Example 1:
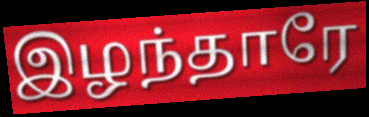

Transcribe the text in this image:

இழந்தாரே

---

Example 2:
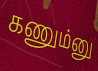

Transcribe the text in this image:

கணும்னு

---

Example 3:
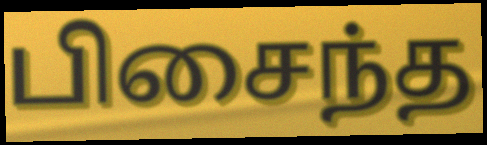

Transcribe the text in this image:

பிசைந்த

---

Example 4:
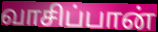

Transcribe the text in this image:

வாசிப்பான்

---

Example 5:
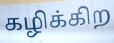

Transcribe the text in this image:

கழிக்கிற